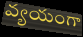
వ్యయంగా